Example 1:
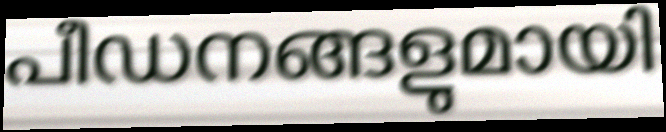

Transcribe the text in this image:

പീഡനങ്ങളുമായി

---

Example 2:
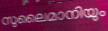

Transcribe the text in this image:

സുലൈമാനിയും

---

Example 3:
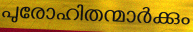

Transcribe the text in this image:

പുരോഹിതന്മാർക്കും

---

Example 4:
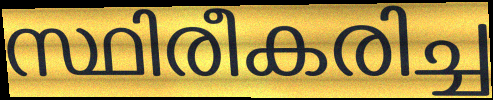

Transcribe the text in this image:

സ്ഥിരീകരിച്ച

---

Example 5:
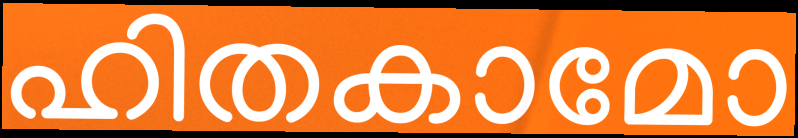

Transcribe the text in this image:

ഹിതകാമോ